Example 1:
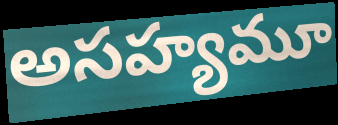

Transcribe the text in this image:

అసహ్యమూ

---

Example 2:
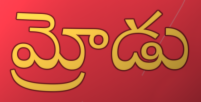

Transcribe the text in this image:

మ్రోడు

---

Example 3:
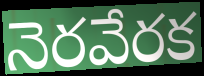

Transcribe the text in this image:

నెరవేరక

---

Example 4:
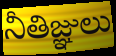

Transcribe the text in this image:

నీతిజ్ఞులు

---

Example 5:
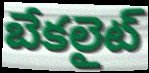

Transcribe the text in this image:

బేకలైట్